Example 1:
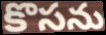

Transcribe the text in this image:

కొసను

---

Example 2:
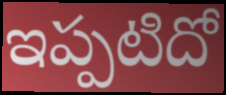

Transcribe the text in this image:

ఇప్పటిదో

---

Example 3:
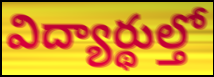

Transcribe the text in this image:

విద్యార్థుల్తో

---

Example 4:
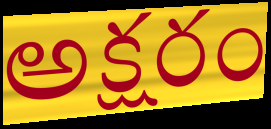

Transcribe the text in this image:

అక్షరం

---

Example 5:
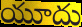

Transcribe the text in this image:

యూదు